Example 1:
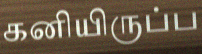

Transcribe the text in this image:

கனியிருப்ப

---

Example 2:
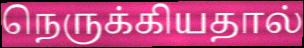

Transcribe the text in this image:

நெருக்கியதால்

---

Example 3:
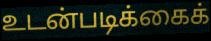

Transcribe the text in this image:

உடன்படிக்கைக்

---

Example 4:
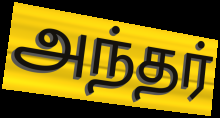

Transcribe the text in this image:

அந்தர்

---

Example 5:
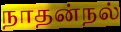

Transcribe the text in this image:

நாதன்நல்